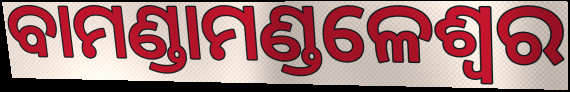
ବାମଣ୍ଡାମଣ୍ଡଳେଶ୍ୱର